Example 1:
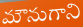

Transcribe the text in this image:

మౌనుగాని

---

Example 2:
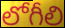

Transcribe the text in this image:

లోగీలి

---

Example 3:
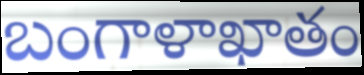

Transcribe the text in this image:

బంగాళాఖాతం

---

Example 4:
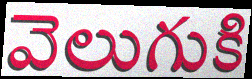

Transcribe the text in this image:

వెలుగుకి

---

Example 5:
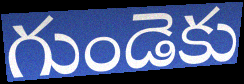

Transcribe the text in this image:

గుండెకు